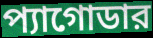
প্যাগোডার